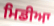
ਮਿਡੀਆ